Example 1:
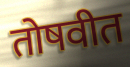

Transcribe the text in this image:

तोषवीत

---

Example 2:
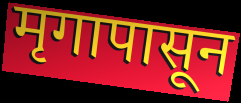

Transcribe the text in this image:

मृगापासून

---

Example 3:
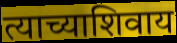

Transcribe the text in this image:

त्याच्याशिवाय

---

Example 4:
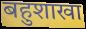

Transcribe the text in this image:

बहुशाखा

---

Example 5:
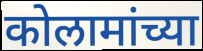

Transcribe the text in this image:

कोलामांच्या